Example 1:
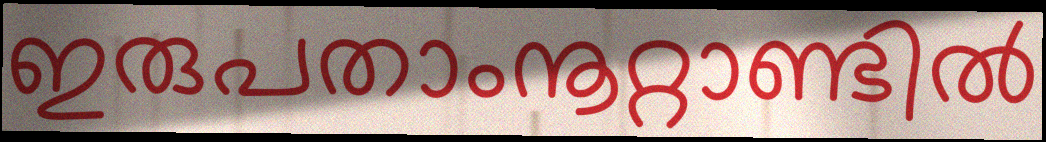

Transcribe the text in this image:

ഇരുപതാംനൂറ്റാണ്ടിൽ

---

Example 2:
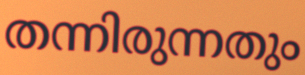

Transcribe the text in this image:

തന്നിരുന്നതും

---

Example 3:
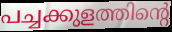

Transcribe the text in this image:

പച്ചക്കുളത്തിന്റെ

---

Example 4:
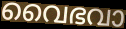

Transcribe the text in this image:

വൈഭവാ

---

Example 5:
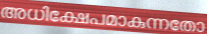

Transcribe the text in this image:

അധിക്ഷേപമാകുന്നതോ